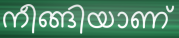
നീങ്ങിയാണ്